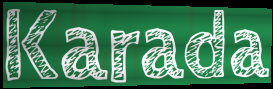
Karada